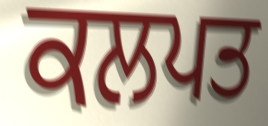
ਕਲਪਤ